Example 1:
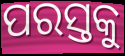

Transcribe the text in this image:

ପରସ୍ତକୁ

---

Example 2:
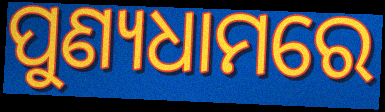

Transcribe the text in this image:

ପୁଣ୍ୟଧାମରେ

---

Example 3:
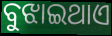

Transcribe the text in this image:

ବୁଝାଇଥାଏ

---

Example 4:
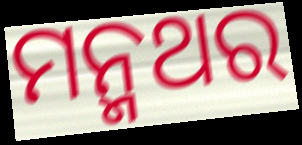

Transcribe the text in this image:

ମନ୍ମଥର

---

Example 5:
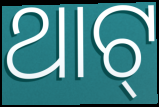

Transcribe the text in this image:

ଥାଟ୍